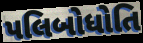
પલિબોધોતિ